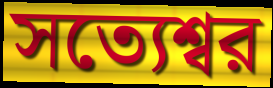
সত্যেশ্বর